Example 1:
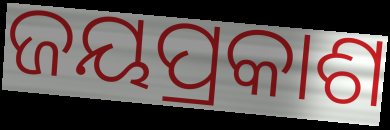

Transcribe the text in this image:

ଜୟପ୍ରକାଶ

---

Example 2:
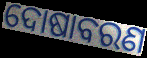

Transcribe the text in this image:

ଦୋଷାବରଣ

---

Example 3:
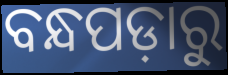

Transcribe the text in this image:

ବନ୍ଧପଡ଼ାରୁ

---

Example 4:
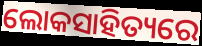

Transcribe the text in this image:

ଲୋକସାହିତ୍ୟରେ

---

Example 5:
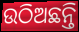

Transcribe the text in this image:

ଉଠିଅଛନ୍ତି